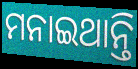
ମନାଇଥାନ୍ତି